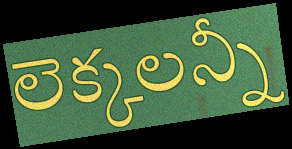
లెక్కలన్నీ